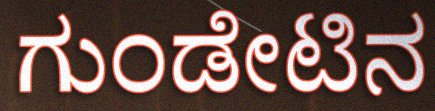
ಗುಂಡೇಟಿನ